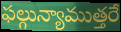
ఫల్గున్యాముత్తరే